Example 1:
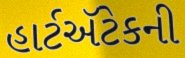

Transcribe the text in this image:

હાર્ટઍટેકની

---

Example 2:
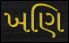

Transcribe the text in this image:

ખણિ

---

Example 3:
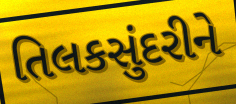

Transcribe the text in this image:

તિલકસુંદરીને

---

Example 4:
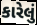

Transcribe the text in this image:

કારેલું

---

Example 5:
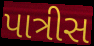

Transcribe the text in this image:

પાત્રીસ